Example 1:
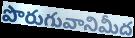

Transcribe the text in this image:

పొరుగువానిమీద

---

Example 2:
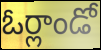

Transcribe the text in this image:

ఓర్లాండో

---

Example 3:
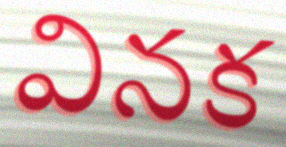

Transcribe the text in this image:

వినక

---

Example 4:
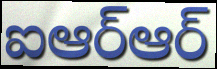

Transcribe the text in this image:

ఐఆర్ఆర్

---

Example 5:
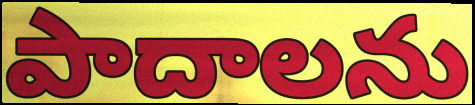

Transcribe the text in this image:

పాదాలను